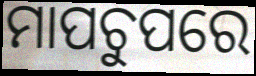
ମାପଚୁପରେ